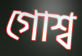
গোশ্ব